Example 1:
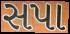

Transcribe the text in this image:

સપા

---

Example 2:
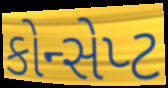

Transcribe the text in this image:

કોન્સેપ્ટ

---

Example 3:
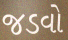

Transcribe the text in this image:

જડવો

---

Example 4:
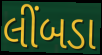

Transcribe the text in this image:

લીંબડા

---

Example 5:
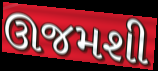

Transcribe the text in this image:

ઊજમશી